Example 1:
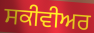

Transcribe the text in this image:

ਸਕੀਵੀਅਰ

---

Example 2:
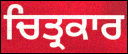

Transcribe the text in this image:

ਚਿਤ੍ਰਕਾਰ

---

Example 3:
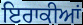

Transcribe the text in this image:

ਇਰਾਕੀਆਂ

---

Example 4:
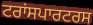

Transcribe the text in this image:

ਟਰਾਂਸਪਾਰਟਰਸ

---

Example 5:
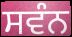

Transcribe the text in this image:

ਸਵੰਨ